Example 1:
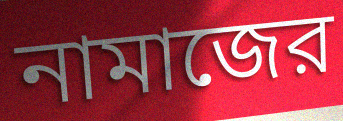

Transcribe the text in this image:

নামাজের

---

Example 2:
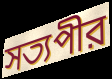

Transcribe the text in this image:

সত্যপীর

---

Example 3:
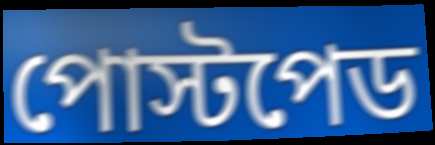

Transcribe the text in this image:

পোস্টপেড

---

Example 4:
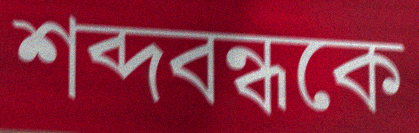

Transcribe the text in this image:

শব্দবন্ধকে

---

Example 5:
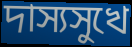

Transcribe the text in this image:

দাস্যসুখে